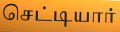
செட்டியார்